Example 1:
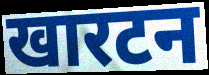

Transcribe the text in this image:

खारटन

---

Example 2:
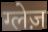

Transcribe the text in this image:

ग्लेज़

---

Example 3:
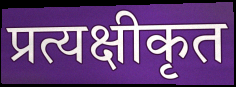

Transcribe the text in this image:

प्रत्यक्षीकृत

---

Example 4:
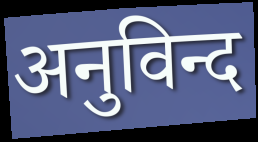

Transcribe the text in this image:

अनुविन्द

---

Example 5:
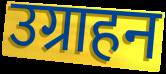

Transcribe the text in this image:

उग्राहन